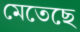
মেতেছে